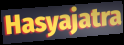
Hasyajatra